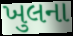
ખુલના